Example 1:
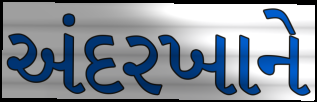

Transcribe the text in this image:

અંદરખાને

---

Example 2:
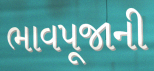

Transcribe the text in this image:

ભાવપૂજાની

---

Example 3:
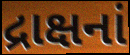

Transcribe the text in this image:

દ્રાક્ષનાં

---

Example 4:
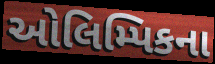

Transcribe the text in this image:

ઓલિમ્પિકના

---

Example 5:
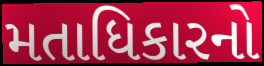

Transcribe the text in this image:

મતાધિકારનો